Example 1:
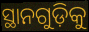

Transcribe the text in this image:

ସ୍ଥାନଗୁଡ଼ିକୁ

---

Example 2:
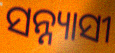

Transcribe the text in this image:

ସନ୍ନ୍ୟାସୀ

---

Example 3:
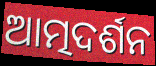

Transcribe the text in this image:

ଆତ୍ମଦର୍ଶନ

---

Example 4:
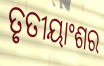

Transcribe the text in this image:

ତୃତୀୟାଂଶର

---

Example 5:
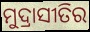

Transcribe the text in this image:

ମୁଦ୍ରାସୀତିର